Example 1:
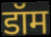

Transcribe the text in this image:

डॉम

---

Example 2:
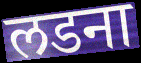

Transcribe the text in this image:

लडना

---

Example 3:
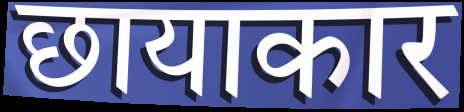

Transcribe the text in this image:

छायाकार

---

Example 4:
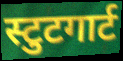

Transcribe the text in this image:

स्टुटगार्ट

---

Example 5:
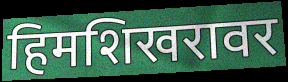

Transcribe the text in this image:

हिमशिखरावर